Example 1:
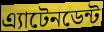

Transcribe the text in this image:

এ্যাটেনডেন্ট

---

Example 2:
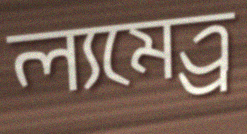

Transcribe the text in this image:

ল্যমেত্র্র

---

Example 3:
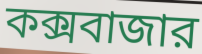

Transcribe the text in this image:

কক্সবাজার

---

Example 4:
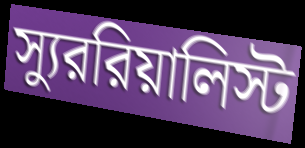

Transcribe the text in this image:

স্যুররিয়ালিস্ট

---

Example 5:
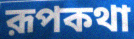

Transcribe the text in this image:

রূপকথা